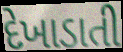
દેખાડાતી